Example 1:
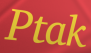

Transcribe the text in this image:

Ptak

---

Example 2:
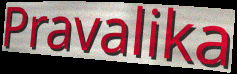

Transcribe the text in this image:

Pravalika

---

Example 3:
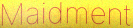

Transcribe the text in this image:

Maidment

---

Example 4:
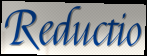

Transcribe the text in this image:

Reductio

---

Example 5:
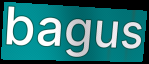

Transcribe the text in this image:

bagus